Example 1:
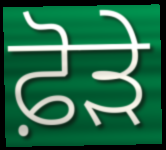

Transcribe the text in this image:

ਫ਼ੋੜੇ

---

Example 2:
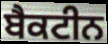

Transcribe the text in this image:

ਬੈਕਟੀਨ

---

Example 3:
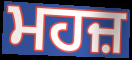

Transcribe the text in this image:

ਮਹਜ਼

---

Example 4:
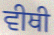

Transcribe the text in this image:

ਵੀਥੀ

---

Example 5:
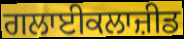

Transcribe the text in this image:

ਗਲਾਈਕਲਾਜ਼ੀਡ